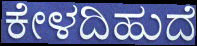
ಕೇಳದಿಹುದೆ